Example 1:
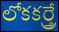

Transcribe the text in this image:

లోకకర్త్రే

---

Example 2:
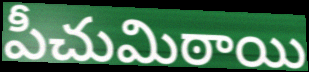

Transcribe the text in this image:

పీచుమిఠాయి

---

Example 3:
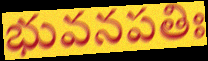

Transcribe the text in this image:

భువనపతిః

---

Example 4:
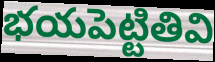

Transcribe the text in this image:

భయపెట్టితివి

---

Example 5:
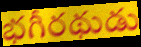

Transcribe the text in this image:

భగీరథుడు